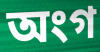
অংগ